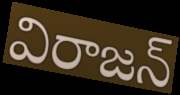
విరాజన్